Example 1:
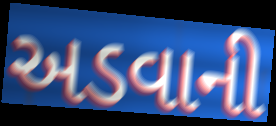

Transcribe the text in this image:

અડવાની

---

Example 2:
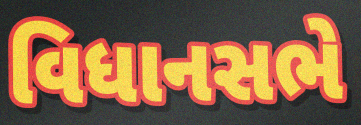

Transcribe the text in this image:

વિધાનસભે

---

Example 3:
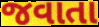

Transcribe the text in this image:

જવાતા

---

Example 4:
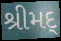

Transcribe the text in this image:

શ્રીમદ્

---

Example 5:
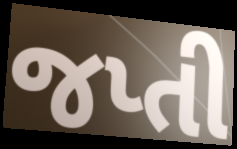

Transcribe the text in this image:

જપ્તી